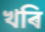
খৰি